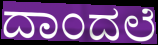
ದಾಂದಲೆ